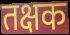
तक्षक